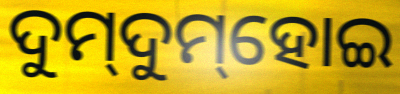
ଦୁମ୍‌ଦୁମ୍‌ହୋଇ